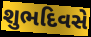
શુભદિવસે